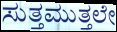
ಸುತ್ತಮುತ್ತಲೇ